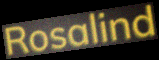
Rosalind